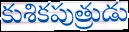
కుశికపుత్రుడు